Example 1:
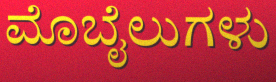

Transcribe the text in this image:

ಮೊಬೈಲುಗಳು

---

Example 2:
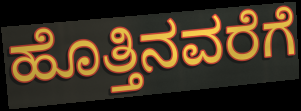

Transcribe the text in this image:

ಹೊತ್ತಿನವರೆಗೆ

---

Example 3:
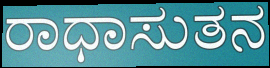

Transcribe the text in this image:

ರಾಧಾಸುತನ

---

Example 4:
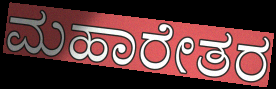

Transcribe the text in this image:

ಮಹಾರೇತರ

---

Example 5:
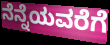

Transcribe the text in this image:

ನೆನ್ನೆಯವರೆಗೆ